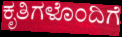
ಕೃತಿಗಳೊಂದಿಗೆ